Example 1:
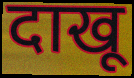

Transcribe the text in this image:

दाखू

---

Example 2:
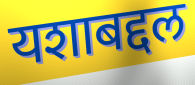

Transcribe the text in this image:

यशाबद्दल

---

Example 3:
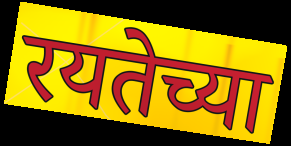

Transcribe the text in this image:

रयतेच्या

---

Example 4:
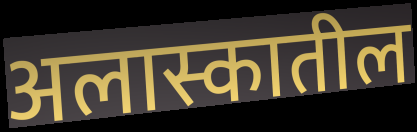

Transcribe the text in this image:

अलास्कातील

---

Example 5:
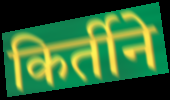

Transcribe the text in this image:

किर्तीने